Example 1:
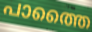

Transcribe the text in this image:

പാത്തൈ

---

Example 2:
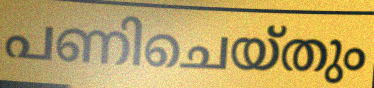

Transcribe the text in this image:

പണിചെയ്തും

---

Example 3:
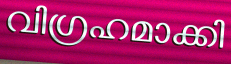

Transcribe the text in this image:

വിഗ്രഹമാക്കി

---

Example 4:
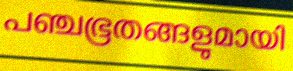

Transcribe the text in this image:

പഞ്ചഭൂതങ്ങളുമായി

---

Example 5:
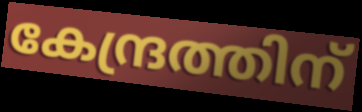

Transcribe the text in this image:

കേന്ദ്രത്തിന്